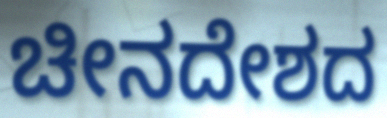
ಚೀನದೇಶದ